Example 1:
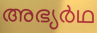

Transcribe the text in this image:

അഭ്യർഥ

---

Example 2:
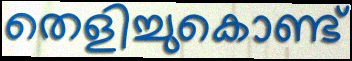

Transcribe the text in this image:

തെളിച്ചുകൊണ്ട്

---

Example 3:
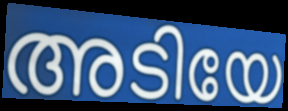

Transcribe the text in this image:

അടിയേ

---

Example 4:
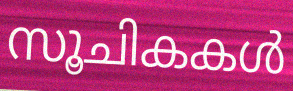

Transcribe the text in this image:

സൂചികകൾ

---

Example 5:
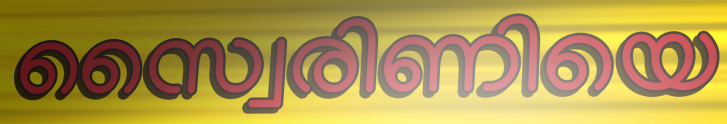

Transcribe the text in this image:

സ്വൈരിണിയെ